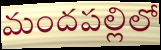
మందపల్లిలో